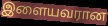
இளையவரான